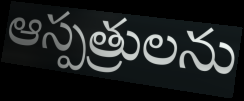
ఆస్పత్రులను